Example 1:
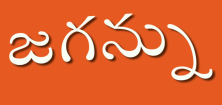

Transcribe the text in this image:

జగన్ను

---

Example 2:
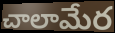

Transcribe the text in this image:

చాలామేర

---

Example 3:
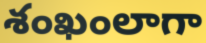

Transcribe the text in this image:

శంఖంలాగా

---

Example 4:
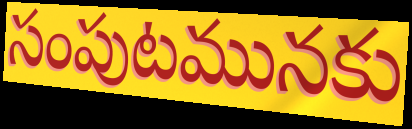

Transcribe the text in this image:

సంపుటమునకు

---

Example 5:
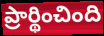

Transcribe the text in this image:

ప్రార్థించింది